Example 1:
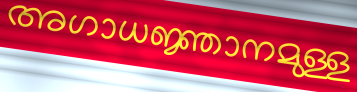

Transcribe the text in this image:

അഗാധജ്ഞാനമുള്ള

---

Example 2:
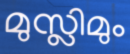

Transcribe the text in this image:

മുസ്ലിമും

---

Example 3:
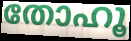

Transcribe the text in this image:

തോഹൂ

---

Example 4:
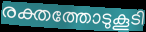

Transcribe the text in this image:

രക്തത്തോടുകൂടി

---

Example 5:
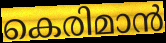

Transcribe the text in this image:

കെരിമാൻ